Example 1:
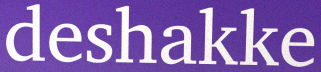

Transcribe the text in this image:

deshakke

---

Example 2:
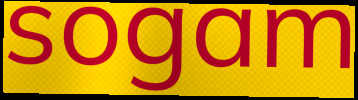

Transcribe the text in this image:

sogam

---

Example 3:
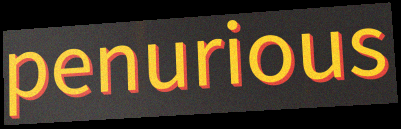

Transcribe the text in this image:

penurious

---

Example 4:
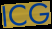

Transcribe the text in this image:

ICG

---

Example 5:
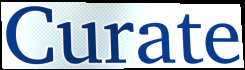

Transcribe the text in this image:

Curate